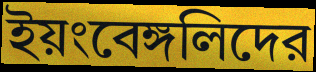
ইয়ংবেঙ্গলিদের